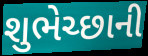
શુભેચ્છાની